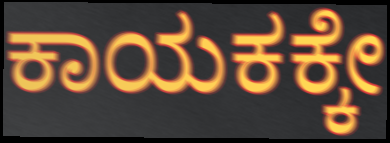
ಕಾಯಕಕ್ಕೇ